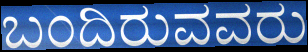
ಬಂದಿರುವವರು